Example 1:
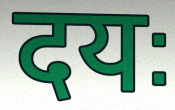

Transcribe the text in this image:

दयः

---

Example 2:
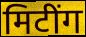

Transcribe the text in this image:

मिटींग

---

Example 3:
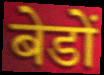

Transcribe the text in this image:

बेडों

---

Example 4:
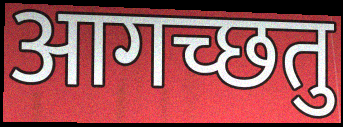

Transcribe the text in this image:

आगच्छतु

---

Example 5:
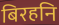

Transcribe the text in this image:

बिरहनि